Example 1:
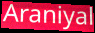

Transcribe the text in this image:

Araniyal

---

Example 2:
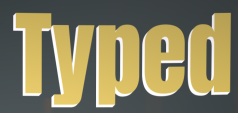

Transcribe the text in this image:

Typed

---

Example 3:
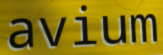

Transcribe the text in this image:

avium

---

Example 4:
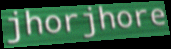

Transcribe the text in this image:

jhorjhore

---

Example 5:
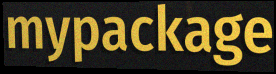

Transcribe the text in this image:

mypackage